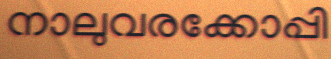
നാലുവരക്കോപ്പി